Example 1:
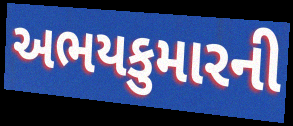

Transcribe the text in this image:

અભયકુમારની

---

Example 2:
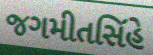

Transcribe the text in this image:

જગમીતસિંહે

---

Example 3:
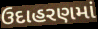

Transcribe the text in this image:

ઉદાહરણમાં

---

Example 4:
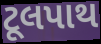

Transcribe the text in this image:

ટૂલપાથ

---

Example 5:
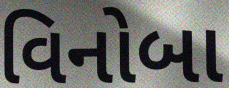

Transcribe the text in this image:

વિનોબા